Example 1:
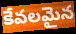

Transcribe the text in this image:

కేవలమైన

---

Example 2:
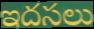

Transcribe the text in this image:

ఇదసలు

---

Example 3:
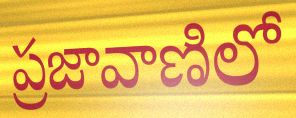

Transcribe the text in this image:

ప్రజావాణిలో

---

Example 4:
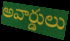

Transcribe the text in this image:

అవార్డులు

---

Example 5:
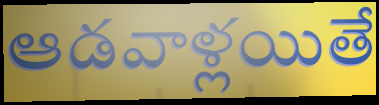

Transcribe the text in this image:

ఆడవాళ్లయితే